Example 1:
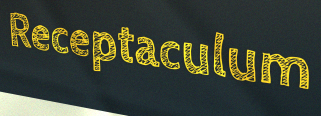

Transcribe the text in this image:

Receptaculum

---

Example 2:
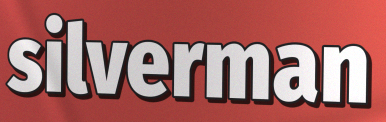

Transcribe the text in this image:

silverman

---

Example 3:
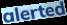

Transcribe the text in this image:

alerted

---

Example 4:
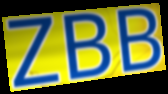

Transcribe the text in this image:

ZBB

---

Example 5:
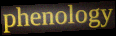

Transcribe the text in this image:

phenology